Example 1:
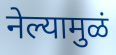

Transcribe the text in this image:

नेल्यामुळं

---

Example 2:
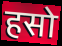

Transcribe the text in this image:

हसो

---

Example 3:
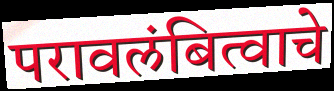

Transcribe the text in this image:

परावलंबित्वाचे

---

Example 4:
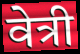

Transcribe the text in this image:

वेत्री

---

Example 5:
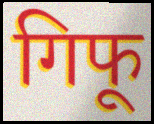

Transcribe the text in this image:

गिफू